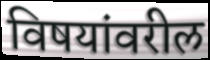
विषयांवरील